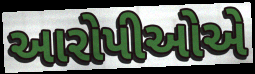
આરોપીઓએ